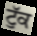
ਟੁੱਕ